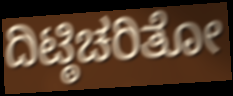
ದಿಟ್ಠಿಚರಿತೋ